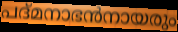
പദ്മനാഭൻനായരും